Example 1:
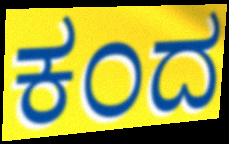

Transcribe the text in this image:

ಕಂದ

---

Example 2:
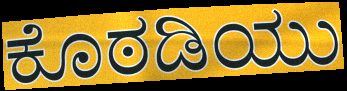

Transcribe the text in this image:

ಕೊಠಡಿಯು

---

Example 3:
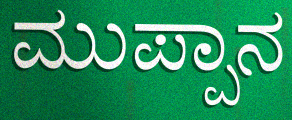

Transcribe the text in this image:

ಮುಪ್ಪಾನ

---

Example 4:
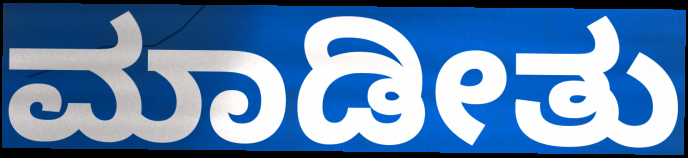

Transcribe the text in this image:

ಮಾಡೀತು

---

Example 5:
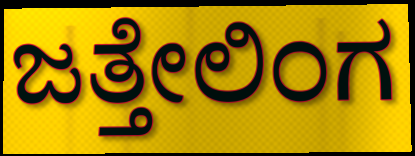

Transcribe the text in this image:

ಜತ್ತೇಲಿಂಗ